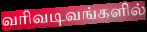
வரிவடிவங்களில்